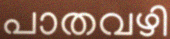
പാതവഴി